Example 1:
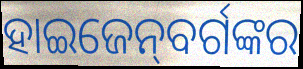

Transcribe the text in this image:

ହାଇଜେନ୍‌ବର୍ଗଙ୍କର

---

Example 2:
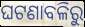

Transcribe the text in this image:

ଘଟଣାବଳିରୁ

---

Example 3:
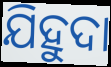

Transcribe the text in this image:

ଯିହୁଦା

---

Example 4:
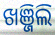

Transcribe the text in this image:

ଖଞ୍ଜିଲି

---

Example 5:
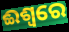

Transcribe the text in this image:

ଈଶ୍ଵରେ